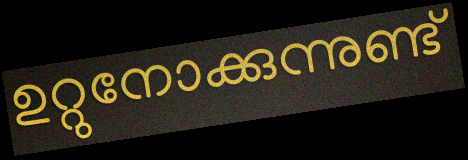
ഉറ്റുനോക്കുന്നുണ്ട്